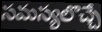
సమస్యలొచ్చే